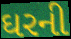
ઘરની